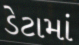
ડેટામાં